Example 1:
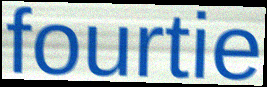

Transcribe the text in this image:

fourtie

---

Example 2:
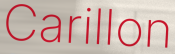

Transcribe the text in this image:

Carillon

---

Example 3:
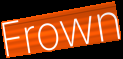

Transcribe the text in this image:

Frown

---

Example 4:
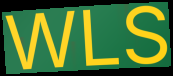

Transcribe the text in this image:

WLS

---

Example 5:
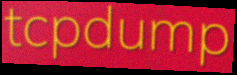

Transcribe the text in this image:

tcpdump